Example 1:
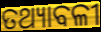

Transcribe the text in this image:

ତଥ୍ୟାବଳୀ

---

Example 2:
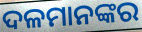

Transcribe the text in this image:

ଦଳମାନଙ୍କର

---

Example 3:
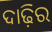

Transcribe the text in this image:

ଦାଢ଼ିର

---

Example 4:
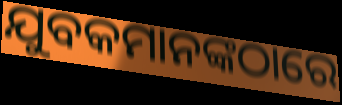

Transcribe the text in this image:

ଯୁବକମାନଙ୍କଠାରେ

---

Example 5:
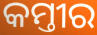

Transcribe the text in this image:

କମ୍ତୀର